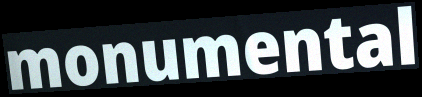
monumental